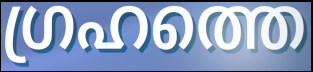
ഗ്രഹത്തെ